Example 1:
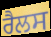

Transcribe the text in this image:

ਰੈਲਸ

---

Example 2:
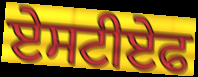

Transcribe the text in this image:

ਏਸਟੀਏਫ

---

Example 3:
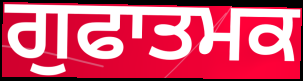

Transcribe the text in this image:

ਗੁਫਾਤਮਕ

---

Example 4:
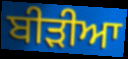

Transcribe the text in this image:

ਬੀੜੀਆ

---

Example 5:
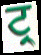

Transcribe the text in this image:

ਟ੍ਰ